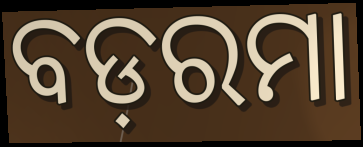
ବଡ଼ରମା